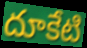
దూకేటి